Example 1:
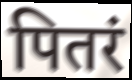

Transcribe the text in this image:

पितरं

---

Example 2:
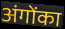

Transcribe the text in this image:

अंगोंका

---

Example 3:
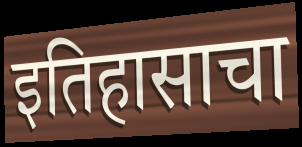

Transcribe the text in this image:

इतिहासाचा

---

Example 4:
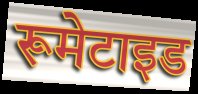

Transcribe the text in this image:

रूमेटाइड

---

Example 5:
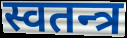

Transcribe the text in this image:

स्वतन्त्र